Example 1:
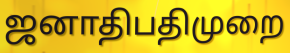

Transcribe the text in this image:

ஜனாதிபதிமுறை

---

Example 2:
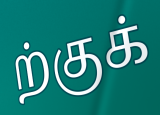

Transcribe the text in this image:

ற்குக்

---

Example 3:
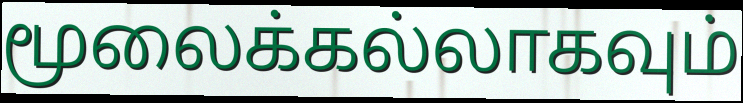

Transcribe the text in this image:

மூலைக்கல்லாகவும்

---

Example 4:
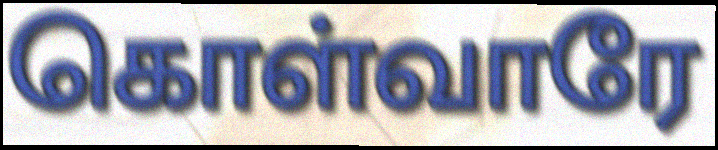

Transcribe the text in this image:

கொள்வாரே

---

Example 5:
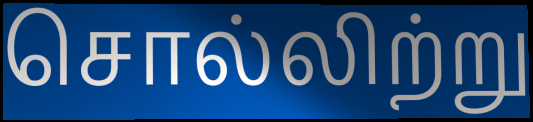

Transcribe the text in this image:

சொல்லிற்று